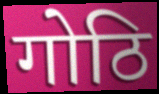
गोठि